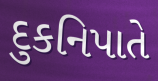
દુકનિપાતે